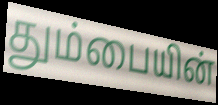
தும்பையின்